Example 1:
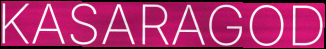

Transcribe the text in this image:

KASARAGOD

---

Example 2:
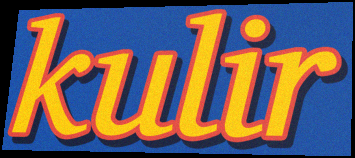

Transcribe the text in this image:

kulir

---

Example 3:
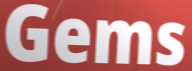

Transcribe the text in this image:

Gems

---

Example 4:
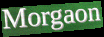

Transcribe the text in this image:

Morgaon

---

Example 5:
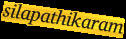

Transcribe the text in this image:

silapathikaram